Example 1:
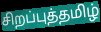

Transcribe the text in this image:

சிறப்புத்தமிழ்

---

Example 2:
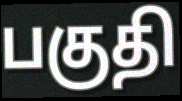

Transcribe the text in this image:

பகுதி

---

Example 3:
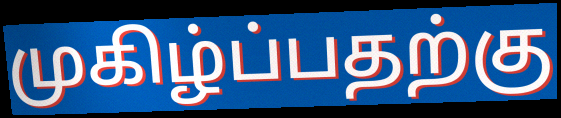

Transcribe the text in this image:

முகிழ்ப்பதற்கு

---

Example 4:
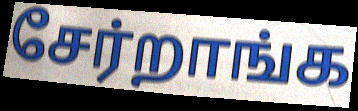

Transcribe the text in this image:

சேர்றாங்க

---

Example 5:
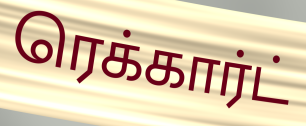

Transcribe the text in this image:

ரெக்கார்ட்